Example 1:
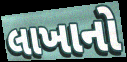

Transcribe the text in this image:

લાખાનો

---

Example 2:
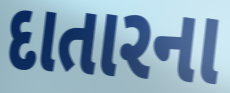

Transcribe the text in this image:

દાતારના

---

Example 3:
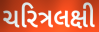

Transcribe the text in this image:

ચરિત્રલક્ષી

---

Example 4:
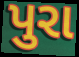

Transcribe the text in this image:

પુરા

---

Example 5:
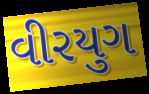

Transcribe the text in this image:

વીરયુગ